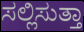
ಸಲ್ಲಿಸುತ್ತಾ